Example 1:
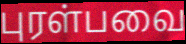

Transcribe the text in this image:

புரள்பவை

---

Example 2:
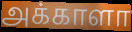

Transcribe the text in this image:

அக்காளா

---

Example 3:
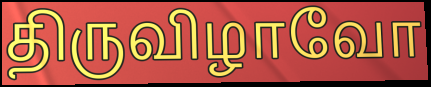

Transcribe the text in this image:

திருவிழாவோ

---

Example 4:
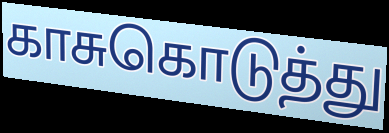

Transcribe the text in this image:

காசுகொடுத்து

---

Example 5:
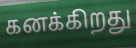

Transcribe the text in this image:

கனக்கிறது